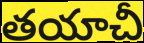
తయాచీ